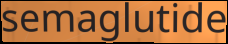
semaglutide